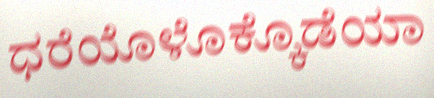
ಧರೆಯೊಳೊಕ್ಕೊಡೆಯಾ